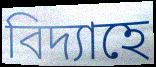
বিদ্যাহে